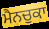
ਮੈਨਚੁਕਾ